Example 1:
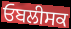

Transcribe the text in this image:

ਓਬਲੀਸਕ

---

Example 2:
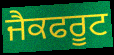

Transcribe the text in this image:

ਜੈਕਫਰੂਟ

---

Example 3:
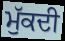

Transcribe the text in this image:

ਮੁੱਕਦੀ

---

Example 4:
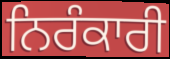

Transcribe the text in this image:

ਨਿਰੰਕਾਰੀ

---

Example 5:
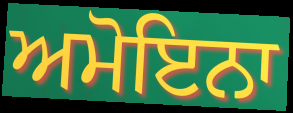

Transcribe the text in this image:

ਅਮੋਇਨਾ